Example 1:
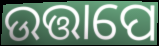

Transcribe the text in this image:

ଉତ୍ତାପେ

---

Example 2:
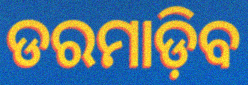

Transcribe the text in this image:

ଡରମାଡ଼ିବ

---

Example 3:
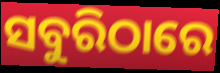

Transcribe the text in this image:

ସବୁରିଠାରେ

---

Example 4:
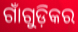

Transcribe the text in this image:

ଗାଁଗୁଡ଼ିକର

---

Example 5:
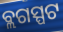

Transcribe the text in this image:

ବ୍ଲଗସ୍ପଟ